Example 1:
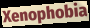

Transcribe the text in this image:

Xenophobia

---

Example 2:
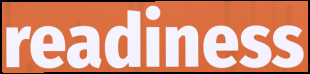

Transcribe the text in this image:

readiness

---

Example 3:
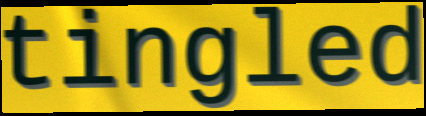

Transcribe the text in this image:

tingled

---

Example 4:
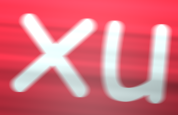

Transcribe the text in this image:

xu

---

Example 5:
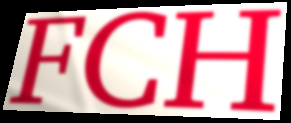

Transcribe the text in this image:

FCH